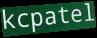
kcpatel